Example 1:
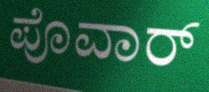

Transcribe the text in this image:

ಪೊವಾರ್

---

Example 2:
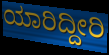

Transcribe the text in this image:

ಯಾರಿದ್ದೀರಿ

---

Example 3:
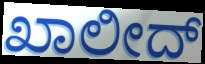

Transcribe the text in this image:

ಖಾಲೀದ್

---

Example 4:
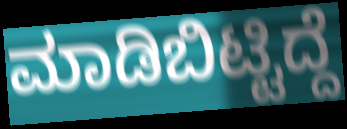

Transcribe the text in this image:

ಮಾಡಿಬಿಟ್ಟಿದ್ದೆ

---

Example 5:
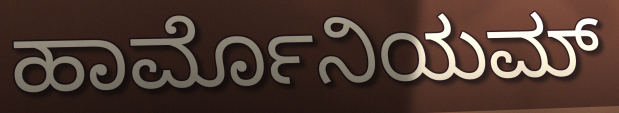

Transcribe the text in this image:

ಹಾರ್ಮೊನಿಯಮ್